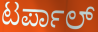
ಟರ್ಪಾಲ್